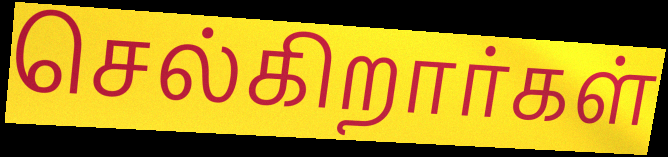
செல்கிறார்கள்